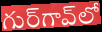
గుర్‌గావ్‌లో